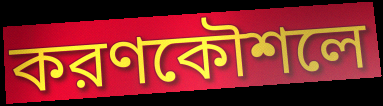
করণকৌশলে